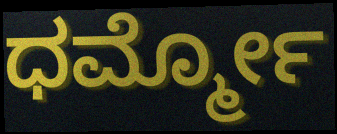
ಧರ್ಮ್ಮೋ